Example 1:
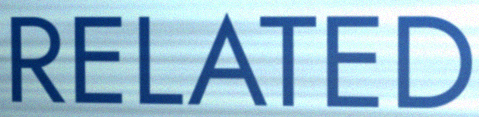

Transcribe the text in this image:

RELATED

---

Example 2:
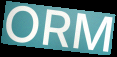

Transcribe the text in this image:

ORM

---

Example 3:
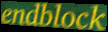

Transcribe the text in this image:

endblock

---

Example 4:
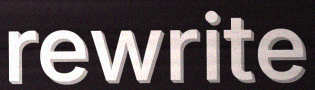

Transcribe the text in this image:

rewrite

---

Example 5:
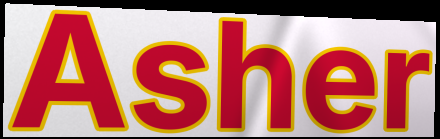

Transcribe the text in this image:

Asher